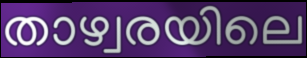
താഴ്വരയിലെ